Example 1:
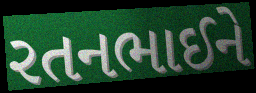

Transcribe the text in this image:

રતનભાઈને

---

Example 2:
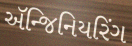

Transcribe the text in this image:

ઍન્જિનિયરિંગ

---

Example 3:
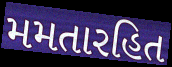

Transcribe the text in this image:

મમતારહિત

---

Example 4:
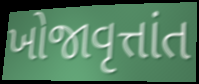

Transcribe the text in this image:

ખોજાવૃત્તાંત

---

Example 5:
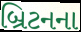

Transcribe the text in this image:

બ્રિટનના